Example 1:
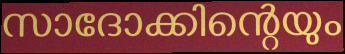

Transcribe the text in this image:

സാദോക്കിന്റെയും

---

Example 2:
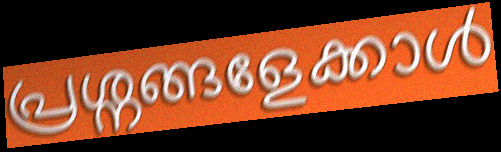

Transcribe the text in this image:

പ്രശ്നങ്ങളേക്കാൾ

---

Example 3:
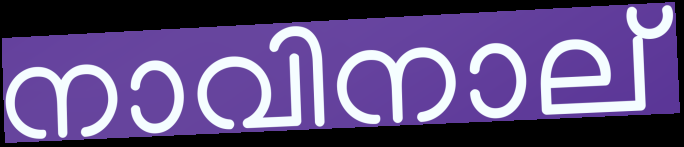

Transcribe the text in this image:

നാവിനാല്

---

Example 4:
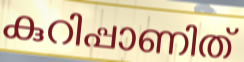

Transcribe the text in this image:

കുറിപ്പാണിത്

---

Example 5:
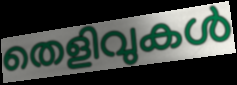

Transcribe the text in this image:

തെളിവുകൾ